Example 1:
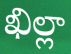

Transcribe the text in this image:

ఖిల్లా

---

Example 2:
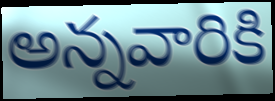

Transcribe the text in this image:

అన్నవారికి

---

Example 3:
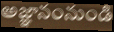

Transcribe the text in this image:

అజ్ఞానంనుండి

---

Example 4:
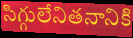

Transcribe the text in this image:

సిగ్గులేనితనానికి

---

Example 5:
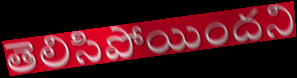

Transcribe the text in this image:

తెలిసిపోయిందని